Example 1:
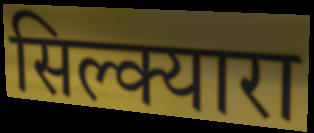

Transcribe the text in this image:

सिल्क्यारा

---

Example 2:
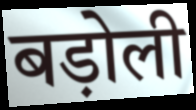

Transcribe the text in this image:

बड़ोली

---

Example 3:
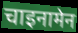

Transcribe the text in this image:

चाइनामेन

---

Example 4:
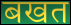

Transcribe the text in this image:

बखत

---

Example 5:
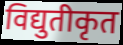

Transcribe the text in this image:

विद्युतीकृत